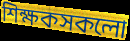
শিক্ষকসকলো